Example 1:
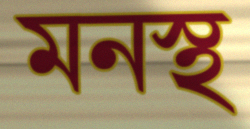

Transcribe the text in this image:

মনস্থ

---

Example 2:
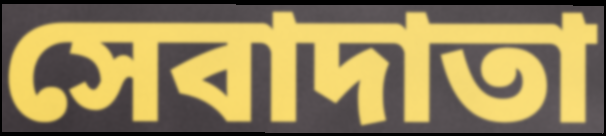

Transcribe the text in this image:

সেবাদাতা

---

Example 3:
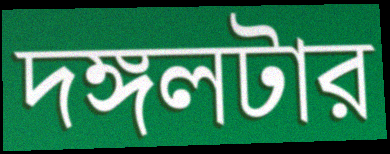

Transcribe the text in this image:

দঙ্গলটার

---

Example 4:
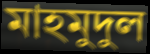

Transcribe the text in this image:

মাহমুদুল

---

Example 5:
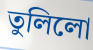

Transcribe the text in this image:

তুলিলো